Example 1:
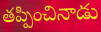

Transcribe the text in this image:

తప్పించినాడు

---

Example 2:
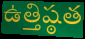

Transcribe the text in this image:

ఉత్తిష్ఠత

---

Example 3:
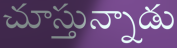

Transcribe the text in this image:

చూస్తున్నాడు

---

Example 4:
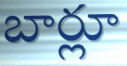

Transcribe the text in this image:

బార్లూ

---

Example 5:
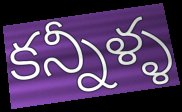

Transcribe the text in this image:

కన్నీళ్ళ